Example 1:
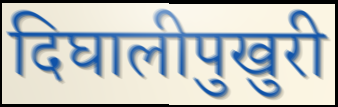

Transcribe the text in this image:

दिघालीपुखुरी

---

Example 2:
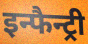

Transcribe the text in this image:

इन्फैन्ट्री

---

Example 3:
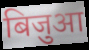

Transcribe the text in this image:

बिजुआ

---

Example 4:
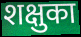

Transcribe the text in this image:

शक्षुका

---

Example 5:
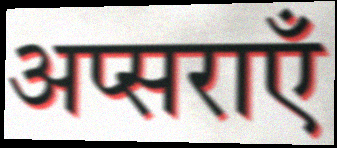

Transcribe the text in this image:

अप्सराएँ